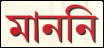
মাননি